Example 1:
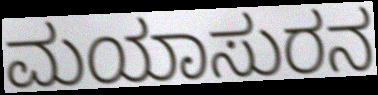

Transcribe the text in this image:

ಮಯಾಸುರನ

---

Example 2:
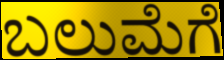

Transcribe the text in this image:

ಬಲುಮೆಗೆ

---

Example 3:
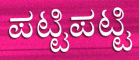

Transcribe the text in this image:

ಪಟ್ಟಿಪಟ್ಟಿ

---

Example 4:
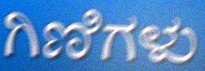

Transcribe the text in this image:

ಗಿಣಿಗಳು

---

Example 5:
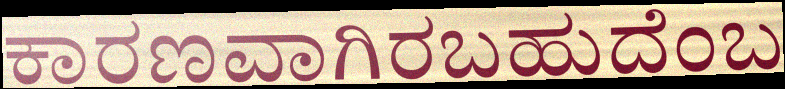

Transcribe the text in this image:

ಕಾರಣವಾಗಿರಬಹುದೆಂಬ